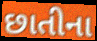
છાતીના